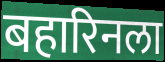
बहारिनला